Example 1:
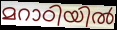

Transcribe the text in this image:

മറാഠിയിൽ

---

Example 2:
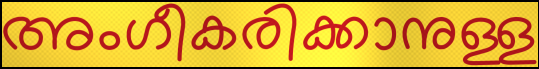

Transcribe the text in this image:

അംഗീകരിക്കാനുള്ള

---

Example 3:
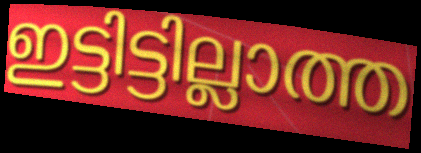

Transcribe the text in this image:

ഇട്ടിട്ടില്ലാത്ത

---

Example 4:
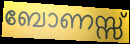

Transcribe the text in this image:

ബോണസ്സ്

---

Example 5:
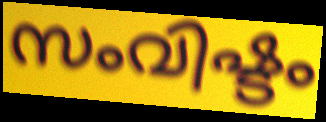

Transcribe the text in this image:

സംവിഷ്ടം